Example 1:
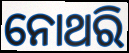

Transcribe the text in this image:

ନୋଥରି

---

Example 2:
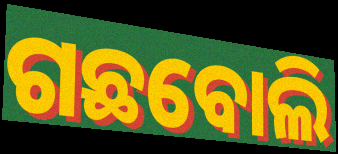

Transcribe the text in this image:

ଗଛବୋଲି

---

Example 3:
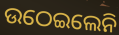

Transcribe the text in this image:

ଉଠେଇଲେନି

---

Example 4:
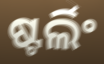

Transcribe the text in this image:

ଷ୍ଟର୍ଲିଂ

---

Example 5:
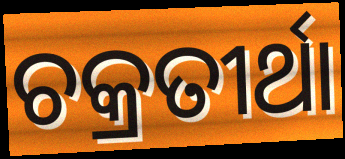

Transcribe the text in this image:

ଚକ୍ରତୀର୍ଥା